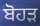
ਬੋਹੜ